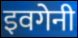
इवगेनी